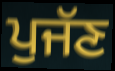
ਪੁਜੱਣ